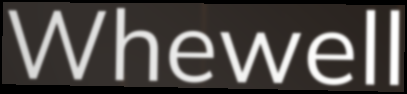
Whewell